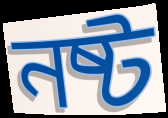
নষ্ট